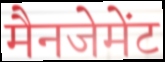
मैनजेमेंट